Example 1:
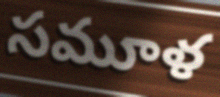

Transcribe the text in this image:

సమూళ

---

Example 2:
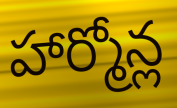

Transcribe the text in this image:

హార్మోన్ల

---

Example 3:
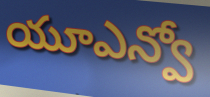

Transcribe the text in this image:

యూఎన్వో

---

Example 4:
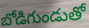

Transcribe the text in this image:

బోడిగుండుతో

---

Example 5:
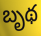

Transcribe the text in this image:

బృథ